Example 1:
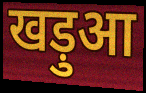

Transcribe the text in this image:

खड़ुआ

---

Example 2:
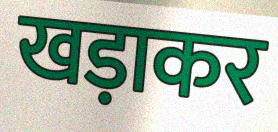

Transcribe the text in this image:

खड़ाकर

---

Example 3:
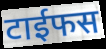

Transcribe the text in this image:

टाईफस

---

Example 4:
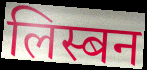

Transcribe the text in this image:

लिस्बन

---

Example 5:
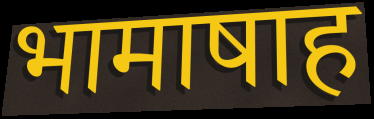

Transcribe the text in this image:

भामाषाह